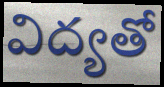
విద్యతో